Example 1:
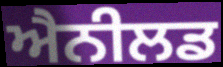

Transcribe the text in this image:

ਐਨੀਲਡ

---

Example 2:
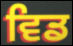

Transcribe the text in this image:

ਵਿਡ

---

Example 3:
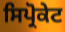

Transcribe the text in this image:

ਸਿਪ੍ਰੋਕੇਟ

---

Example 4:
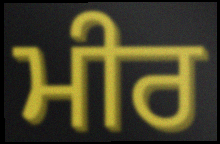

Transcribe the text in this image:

ਮੀਰ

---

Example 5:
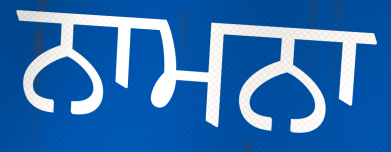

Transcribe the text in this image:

ਨਾਮਨਾ